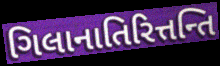
ગિલાનાતિરિત્તન્તિ